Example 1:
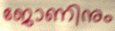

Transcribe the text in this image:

ജോണിനും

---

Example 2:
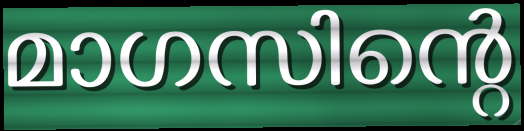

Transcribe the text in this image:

മാഗസിന്റെ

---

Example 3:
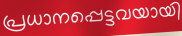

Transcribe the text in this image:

പ്രധാനപ്പെട്ടവയായി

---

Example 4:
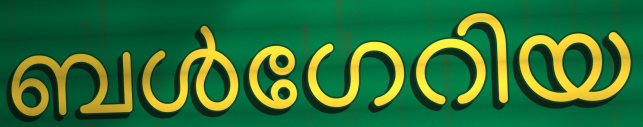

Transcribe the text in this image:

ബൾഗേറിയ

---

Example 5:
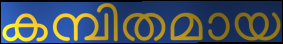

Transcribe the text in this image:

കമ്പിതമായ